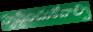
సృష్టించుకోవాల్సి